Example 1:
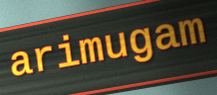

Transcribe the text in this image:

arimugam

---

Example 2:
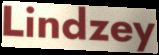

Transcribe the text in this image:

Lindzey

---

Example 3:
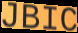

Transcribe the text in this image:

JBIC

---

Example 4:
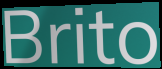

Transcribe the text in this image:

Brito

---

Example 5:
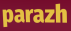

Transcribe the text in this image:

parazh